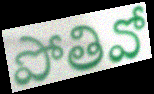
పోతివో